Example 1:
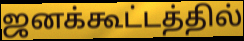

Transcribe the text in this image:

ஜனக்கூட்டத்தில்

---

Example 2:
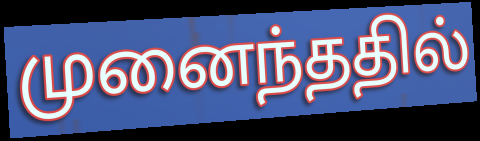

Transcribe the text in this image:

முனைந்ததில்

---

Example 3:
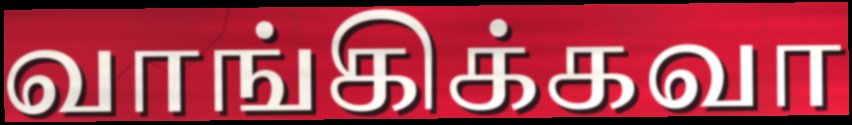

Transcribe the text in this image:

வாங்கிக்கவா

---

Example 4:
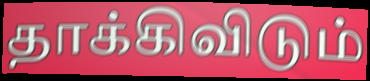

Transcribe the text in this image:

தாக்கிவிடும்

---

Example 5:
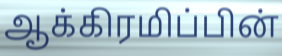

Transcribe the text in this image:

ஆக்கிரமிப்பின்